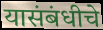
यासंबंधीचे